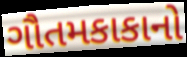
ગૌતમકાકાનો